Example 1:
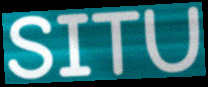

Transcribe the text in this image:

SITU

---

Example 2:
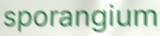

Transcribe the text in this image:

sporangium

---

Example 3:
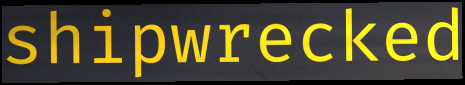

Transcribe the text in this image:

shipwrecked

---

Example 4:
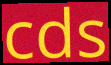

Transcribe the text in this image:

cds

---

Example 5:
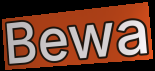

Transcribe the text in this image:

Bewa